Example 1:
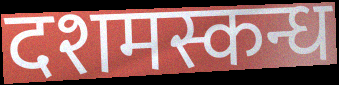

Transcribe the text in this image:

दशमस्कन्ध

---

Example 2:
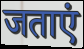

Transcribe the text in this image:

जताएं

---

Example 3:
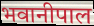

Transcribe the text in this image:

भवानीपाल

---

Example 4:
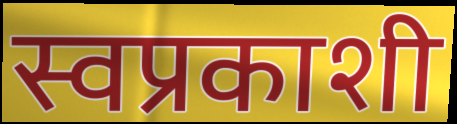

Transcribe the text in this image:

स्वप्रकाशी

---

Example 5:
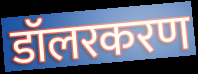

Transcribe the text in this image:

डॉलरकरण